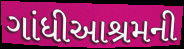
ગાંધીઆશ્રમની